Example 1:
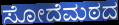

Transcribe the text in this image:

ಸೋದೆಮಠದ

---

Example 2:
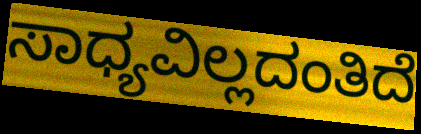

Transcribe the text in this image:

ಸಾಧ್ಯವಿಲ್ಲದಂತಿದೆ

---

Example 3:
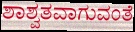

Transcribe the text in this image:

ಶಾಶ್ವತವಾಗುವಂತೆ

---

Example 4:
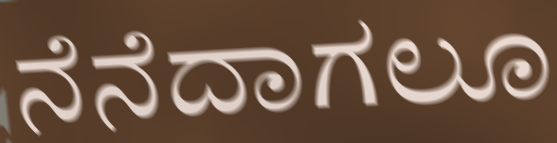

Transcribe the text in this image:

ನೆನೆದಾಗಲೂ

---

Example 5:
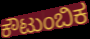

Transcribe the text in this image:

ಕೌಟುಂಬಿಕ